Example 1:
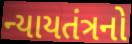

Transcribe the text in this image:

ન્યાયતંત્રનો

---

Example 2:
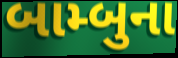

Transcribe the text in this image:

બામ્બુના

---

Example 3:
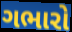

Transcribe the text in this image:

ગભારો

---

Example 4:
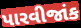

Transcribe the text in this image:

પારવીજાંક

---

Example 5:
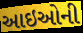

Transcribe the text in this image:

આઇઓની